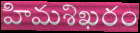
హిమశిఖరం